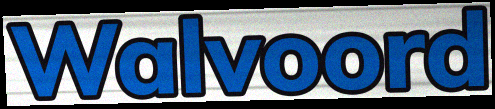
Walvoord